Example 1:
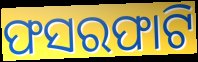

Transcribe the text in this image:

ଫସରଫାଟି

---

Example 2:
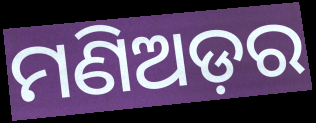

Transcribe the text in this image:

ମଣିଅଡ଼ର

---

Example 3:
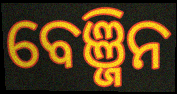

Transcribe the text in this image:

ବେଞ୍ଜିନ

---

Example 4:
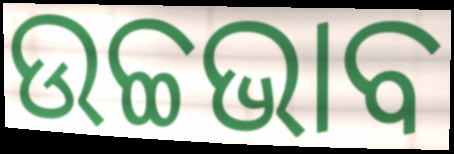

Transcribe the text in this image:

ଉଚ୍ଚଭାବ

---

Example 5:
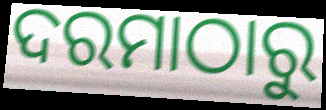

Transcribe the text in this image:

ଦରମାଠାରୁ